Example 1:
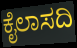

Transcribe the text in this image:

ಕೈಲಾಸದಿ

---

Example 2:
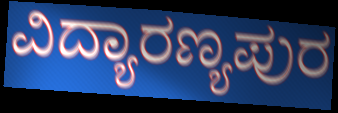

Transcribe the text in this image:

ವಿದ್ಯಾರಣ್ಯಪುರ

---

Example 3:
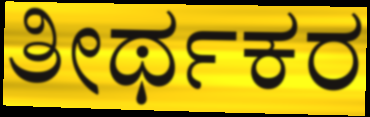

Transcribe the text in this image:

ತೀರ್ಥಕರ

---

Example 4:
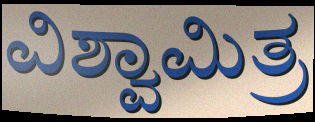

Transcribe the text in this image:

ವಿಶ್ವಾಮಿತ್ರ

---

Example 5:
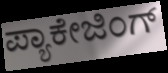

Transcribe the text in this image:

ಪ್ಯಾಕೇಜಿಂಗ್